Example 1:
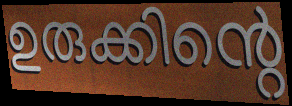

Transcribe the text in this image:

ഉരുക്കിന്റെ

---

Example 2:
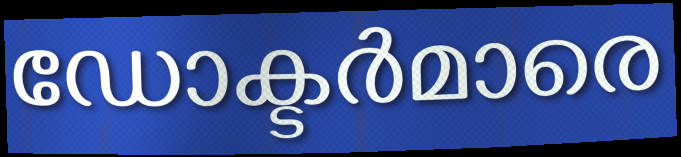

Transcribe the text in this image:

ഡോക്ടർമാരെ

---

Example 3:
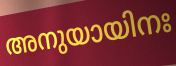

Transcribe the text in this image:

അനുയായിനഃ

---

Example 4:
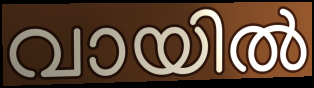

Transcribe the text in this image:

വായിൽ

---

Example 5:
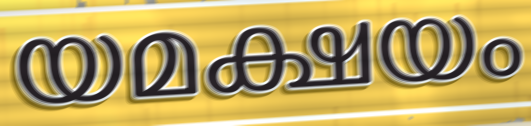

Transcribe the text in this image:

യമക്ഷയം